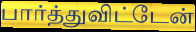
பார்த்துவிட்டேன்